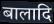
बालादि